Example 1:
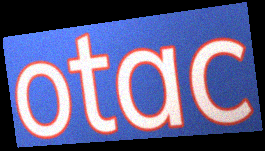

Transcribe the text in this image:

otac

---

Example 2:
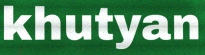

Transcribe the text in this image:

khutyan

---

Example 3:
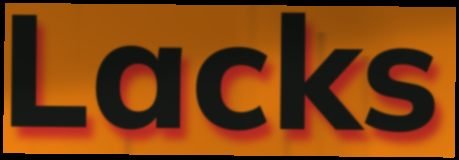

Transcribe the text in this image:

Lacks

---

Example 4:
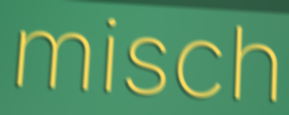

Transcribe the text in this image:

misch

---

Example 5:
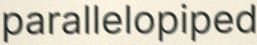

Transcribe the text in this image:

parallelopiped